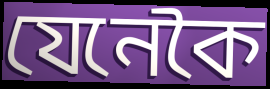
যেনেকৈ